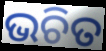
ଭଚିତ